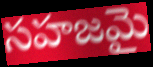
సహజమై